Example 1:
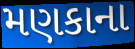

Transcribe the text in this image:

મણકાના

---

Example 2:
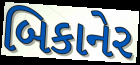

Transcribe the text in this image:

બિકાનેર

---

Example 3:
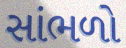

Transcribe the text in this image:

સાંભળો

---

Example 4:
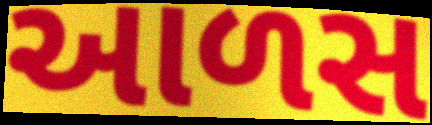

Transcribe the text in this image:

આળસ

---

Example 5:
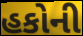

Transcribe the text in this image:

હકોની